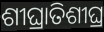
ଶୀଘ୍ରାତିଶୀଘ୍ର